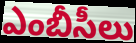
ఎంబీసీలు